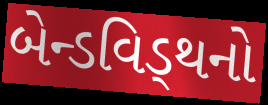
બેન્ડવિડ્થનો